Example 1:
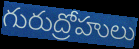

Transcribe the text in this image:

గురుద్రోహులు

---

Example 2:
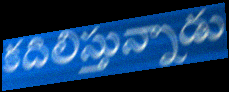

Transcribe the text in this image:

కదిలిస్తున్నాడు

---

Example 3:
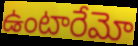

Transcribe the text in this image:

ఉంటారేమో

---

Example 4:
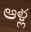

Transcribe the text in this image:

ఆళ్ల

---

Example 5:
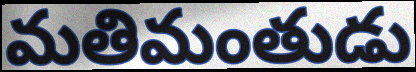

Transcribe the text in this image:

మతిమంతుడు